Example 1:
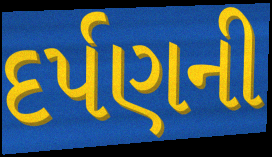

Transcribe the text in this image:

દર્પણની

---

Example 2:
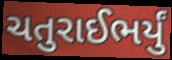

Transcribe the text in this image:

ચતુરાઈભર્યું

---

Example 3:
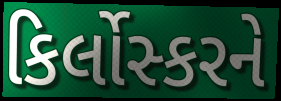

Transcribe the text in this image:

કિર્લોસ્કરને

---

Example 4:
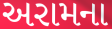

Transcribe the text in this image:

અરામના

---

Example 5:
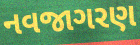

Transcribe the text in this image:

નવજાગરણ